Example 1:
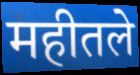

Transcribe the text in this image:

महीतले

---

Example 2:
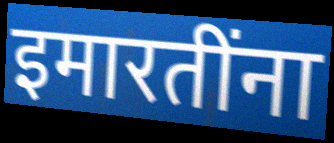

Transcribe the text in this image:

इमारतींना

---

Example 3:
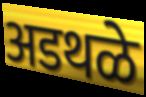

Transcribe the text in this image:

अडथळे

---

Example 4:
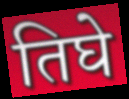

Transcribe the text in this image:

तिघे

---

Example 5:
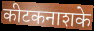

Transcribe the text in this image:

कीटकनाशके